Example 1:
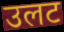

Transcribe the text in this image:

उलट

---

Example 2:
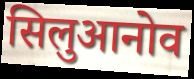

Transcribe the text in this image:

सिलुआनोव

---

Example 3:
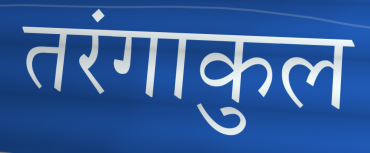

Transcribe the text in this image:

तरंगाकुल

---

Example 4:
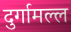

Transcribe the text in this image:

दुर्गामल्ल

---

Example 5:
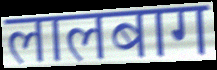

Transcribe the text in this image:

लालबाग